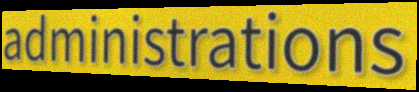
administrations